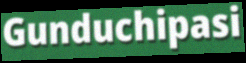
Gunduchipasi